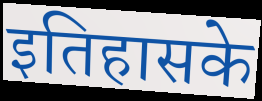
इतिहासके